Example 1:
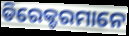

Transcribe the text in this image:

ଡିରେକ୍ଟରମାନେ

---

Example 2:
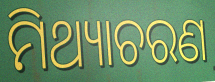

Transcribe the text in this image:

ମିଥ୍ୟାଚରଣ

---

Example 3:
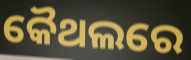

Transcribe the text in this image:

କୈଥଲରେ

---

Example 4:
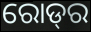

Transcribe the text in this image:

ରୋଡ୍‌ର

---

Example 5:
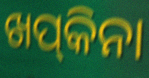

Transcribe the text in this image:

ଖପ୍‍କିନା